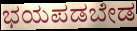
ಭಯಪಡಬೇಡ